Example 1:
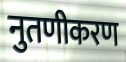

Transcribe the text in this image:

नुतणीकरण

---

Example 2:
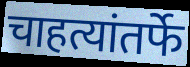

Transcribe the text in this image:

चाहत्यांतर्फे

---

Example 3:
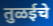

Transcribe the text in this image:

तुळईचे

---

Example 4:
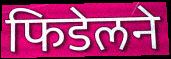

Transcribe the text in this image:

फिडेलने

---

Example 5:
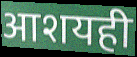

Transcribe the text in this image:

आशयही